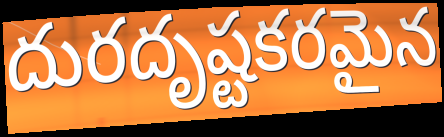
దురదృష్టకరమైన